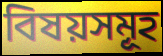
বিষয়সমূহ